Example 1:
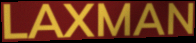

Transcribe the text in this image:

LAXMAN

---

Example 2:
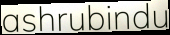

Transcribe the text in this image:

ashrubindu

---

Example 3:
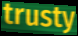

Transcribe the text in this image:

trusty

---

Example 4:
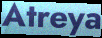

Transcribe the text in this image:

Atreya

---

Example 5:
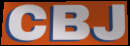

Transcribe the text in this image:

CBJ